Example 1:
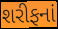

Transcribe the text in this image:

શરીફનાં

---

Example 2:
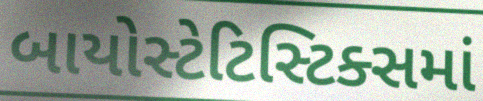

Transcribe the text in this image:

બાયોસ્ટેટિસ્ટિક્સમાં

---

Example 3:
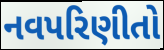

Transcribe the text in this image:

નવપરિણીતો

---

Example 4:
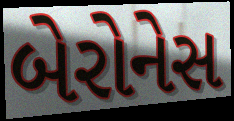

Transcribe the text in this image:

બેરોનેસ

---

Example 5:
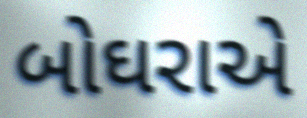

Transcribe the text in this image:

બોઘરાએ